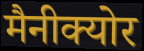
मैनीक्योर